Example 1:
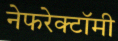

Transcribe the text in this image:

नेफरेक्टॉमी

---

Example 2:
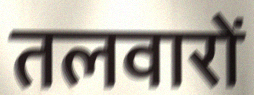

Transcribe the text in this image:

तलवारों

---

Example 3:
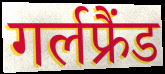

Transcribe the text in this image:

गर्लफ्रैंड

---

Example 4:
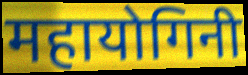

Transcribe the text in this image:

महायोगिनी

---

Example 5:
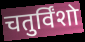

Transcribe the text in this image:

चतुर्विंशो